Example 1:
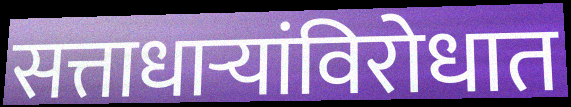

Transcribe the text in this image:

सत्ताधाऱ्यांविरोधात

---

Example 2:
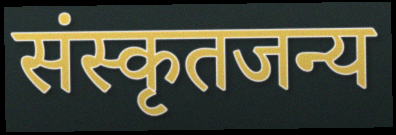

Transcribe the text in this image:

संस्कृतजन्य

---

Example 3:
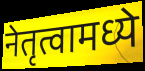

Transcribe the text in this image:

नेतृत्वामध्ये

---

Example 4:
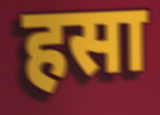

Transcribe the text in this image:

हसा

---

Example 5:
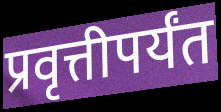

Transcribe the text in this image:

प्रवृत्तीपर्यंत